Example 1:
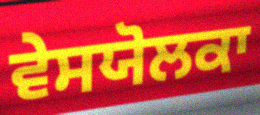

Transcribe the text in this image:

ਵੇਸਯੋਲਕਾ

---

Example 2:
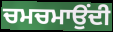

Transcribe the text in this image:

ਚਮਚਮਾਉਂਦੀ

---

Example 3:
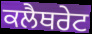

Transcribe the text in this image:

ਕਲੈਥਰੇਟ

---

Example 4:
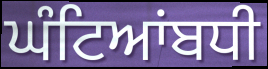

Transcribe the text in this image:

ਘੰਟਿਆਂਬਧੀ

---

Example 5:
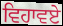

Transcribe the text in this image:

ਵਿਹਾਵਏ